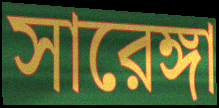
সারেঙ্গা